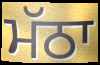
ਮੱਠਾ